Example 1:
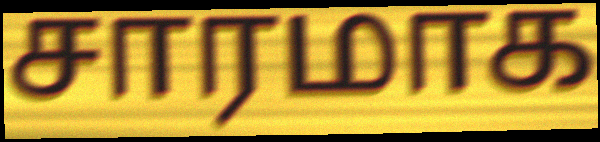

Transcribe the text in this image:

சாரமாக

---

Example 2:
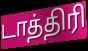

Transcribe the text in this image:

டாத்திரி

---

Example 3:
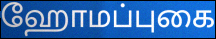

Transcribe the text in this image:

ஹோமப்புகை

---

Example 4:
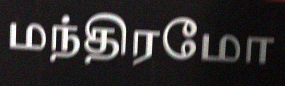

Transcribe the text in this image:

மந்திரமோ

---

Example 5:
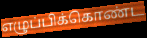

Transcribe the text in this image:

எழுப்பிக்கொண்ட